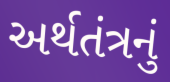
અર્થતંત્રનું